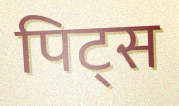
पिट्स